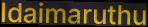
Idaimaruthu